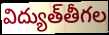
విద్యుత్‌తీగల